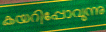
കയറിപ്പോവുന്നു